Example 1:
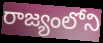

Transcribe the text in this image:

రాజ్యంలోని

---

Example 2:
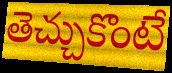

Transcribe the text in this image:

తెచ్చుకొంటే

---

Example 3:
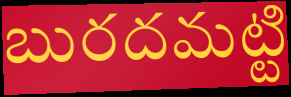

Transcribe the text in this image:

బురదమట్టి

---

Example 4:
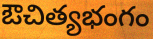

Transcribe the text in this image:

ఔచిత్యభంగం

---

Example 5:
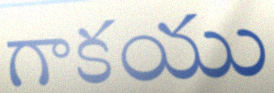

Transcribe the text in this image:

గాకయు